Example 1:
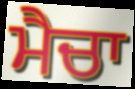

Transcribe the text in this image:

ਮੈਚਾ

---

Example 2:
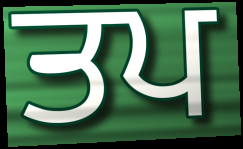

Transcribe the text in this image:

ਤਪ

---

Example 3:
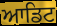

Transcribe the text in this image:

ਆਡਿਟ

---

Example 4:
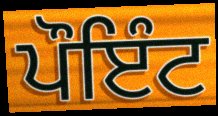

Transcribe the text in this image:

ਪੌਇੰਟ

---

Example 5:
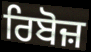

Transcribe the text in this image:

ਰਿਬੋਜ਼